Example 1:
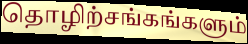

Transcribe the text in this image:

தொழிற்சங்கங்களும்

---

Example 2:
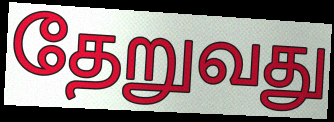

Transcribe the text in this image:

தேறுவது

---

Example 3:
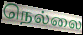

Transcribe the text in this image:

நெல்லை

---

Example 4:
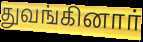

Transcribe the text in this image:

துவங்கினார்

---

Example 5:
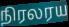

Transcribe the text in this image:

நிரலரய